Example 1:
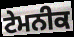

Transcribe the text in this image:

ਟੇਮਨੀਕ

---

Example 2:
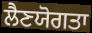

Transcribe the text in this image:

ਲੈਣਯੋਗਤਾ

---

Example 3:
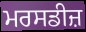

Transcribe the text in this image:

ਮਰਸਡੀਜ਼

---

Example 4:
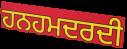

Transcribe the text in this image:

ਹਨਹਮਦਰਦੀ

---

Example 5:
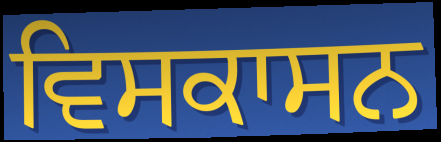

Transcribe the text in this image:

ਵਿਸਕਾਸਨ